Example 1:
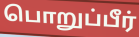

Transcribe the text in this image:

பொறுப்பீர்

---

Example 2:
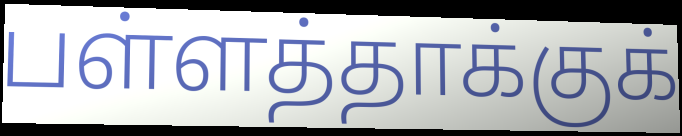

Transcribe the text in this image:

பள்ளத்தாக்குக்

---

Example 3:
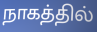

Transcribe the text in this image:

நாகத்தில்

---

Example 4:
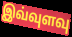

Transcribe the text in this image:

இவ்வுளவு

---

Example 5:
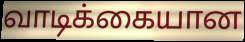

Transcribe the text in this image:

வாடிக்கையான